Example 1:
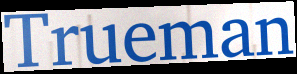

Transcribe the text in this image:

Trueman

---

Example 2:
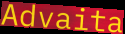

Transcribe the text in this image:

Advaita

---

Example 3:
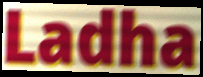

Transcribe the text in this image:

Ladha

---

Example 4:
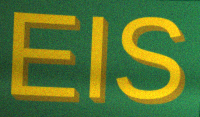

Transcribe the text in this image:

EIS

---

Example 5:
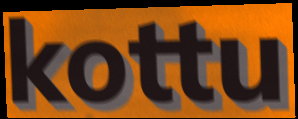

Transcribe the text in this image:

kottu